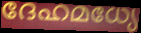
ദേഹമധ്യേ